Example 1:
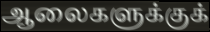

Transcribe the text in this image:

ஆலைகளுக்குக்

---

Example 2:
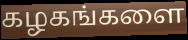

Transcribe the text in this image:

கழகங்களை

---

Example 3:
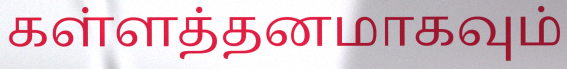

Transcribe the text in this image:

கள்ளத்தனமாகவும்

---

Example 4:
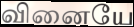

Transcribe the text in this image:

வினையே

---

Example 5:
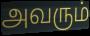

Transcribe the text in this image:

அவரும்